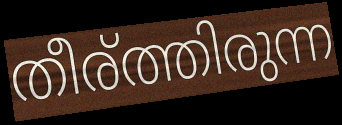
തീര്ത്തിരുന്ന